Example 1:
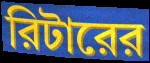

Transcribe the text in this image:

রিটারের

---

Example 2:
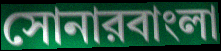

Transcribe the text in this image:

সোনারবাংলা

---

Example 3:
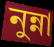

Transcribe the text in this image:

নুন্না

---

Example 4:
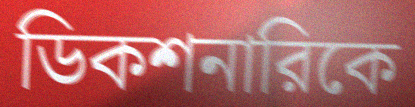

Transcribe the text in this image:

ডিকশনারিকে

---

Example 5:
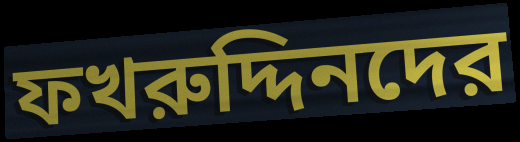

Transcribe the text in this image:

ফখরুদ্দিনদের